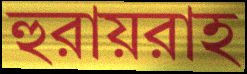
হুরায়রাহ